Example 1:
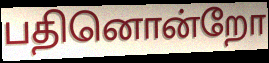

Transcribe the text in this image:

பதினொன்றோ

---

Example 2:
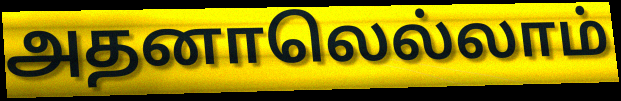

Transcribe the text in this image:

அதனாலெல்லாம்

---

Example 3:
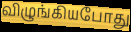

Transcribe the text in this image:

விழுங்கியபோது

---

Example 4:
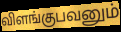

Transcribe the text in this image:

விளங்குபவனும்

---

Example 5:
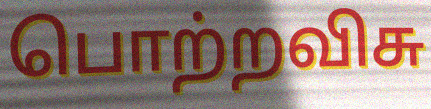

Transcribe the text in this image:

பொற்றவிசு